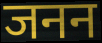
जनन